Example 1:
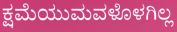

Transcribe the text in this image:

ಕ್ಷಮೆಯುಮವಳೊಳಗಿಲ್ಲ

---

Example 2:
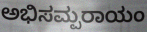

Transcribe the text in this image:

ಅಭಿಸಮ್ಪರಾಯಂ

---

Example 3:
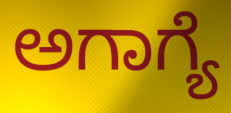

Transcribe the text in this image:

ಅಗಾಗ್ಯೆ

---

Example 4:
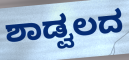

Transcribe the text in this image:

ಶಾಡ್ವಲದ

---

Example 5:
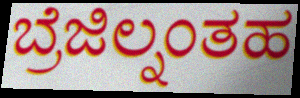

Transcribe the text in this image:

ಬ್ರೆಜಿಲ್ನಂತಹ